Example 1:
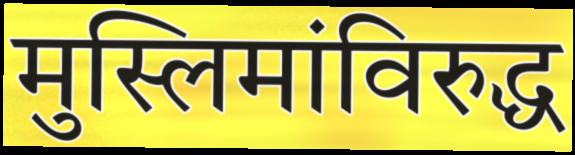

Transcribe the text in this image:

मुस्लिमांविरुद्ध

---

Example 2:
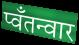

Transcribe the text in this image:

प्वॅंतन्वार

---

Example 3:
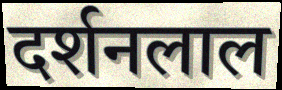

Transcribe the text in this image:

दर्शनलाल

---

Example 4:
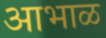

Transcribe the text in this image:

आभाळ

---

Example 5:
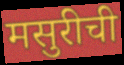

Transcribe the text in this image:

मसुरीची